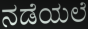
ನಡೆಯಲೆ